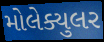
મોલેક્યુલર